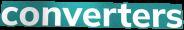
converters